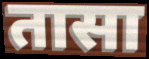
तासा